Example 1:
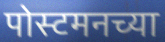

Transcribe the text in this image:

पोस्टमनच्या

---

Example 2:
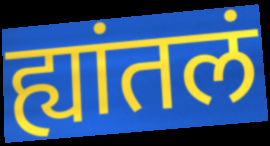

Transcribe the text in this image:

ह्यांतलं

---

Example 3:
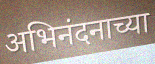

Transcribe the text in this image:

अभिनंदनाच्या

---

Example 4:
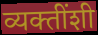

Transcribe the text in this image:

व्यक्तींशी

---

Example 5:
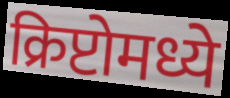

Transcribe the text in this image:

क्रिप्टोमध्ये